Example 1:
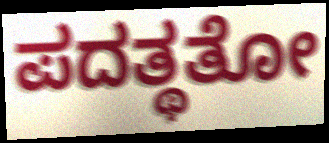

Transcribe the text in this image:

ಪದತ್ಥತೋ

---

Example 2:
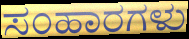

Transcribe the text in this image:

ಸಂಹಾರಗಳು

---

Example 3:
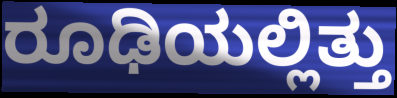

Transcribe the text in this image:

ರೂಢಿಯಲ್ಲಿತ್ತು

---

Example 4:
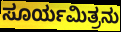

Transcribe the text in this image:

ಸೂರ್ಯಮಿತ್ರನು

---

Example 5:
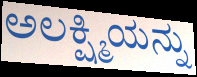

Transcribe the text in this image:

ಅಲಕ್ಷ್ಮಿಯನ್ನು